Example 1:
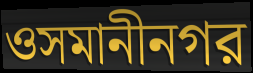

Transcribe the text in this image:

ওসমানীনগর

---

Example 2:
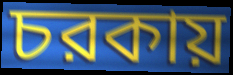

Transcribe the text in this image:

চরকায়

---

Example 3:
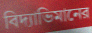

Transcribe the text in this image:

বিদ্যাভিমানের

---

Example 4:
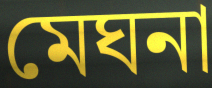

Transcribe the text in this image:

মেঘনা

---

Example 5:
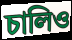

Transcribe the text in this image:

চালিও